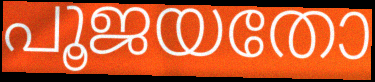
പൂജയതോ